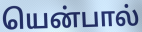
யென்பால்